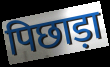
पिछाड़ा